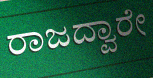
ರಾಜದ್ವಾರೇ